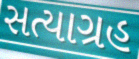
સત્યાગ્રહ